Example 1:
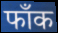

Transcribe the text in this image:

फाँक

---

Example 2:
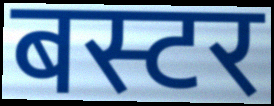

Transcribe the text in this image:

बस्टर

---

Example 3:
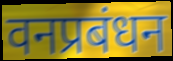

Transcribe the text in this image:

वनप्रबंधन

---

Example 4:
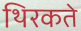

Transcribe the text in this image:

थिरकते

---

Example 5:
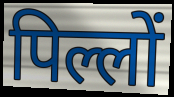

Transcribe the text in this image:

पिल्लों